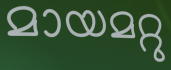
മായമറ്റു